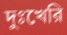
দুঃখেরি